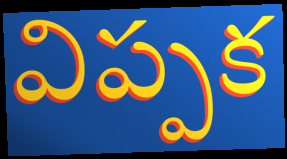
విప్పక